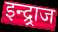
इन्द्र्राज